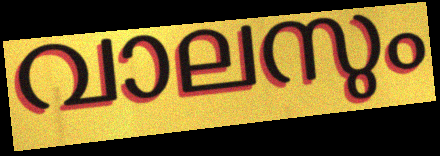
വാലസും